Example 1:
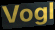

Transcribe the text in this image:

Vogl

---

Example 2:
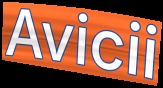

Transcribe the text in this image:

Avicii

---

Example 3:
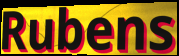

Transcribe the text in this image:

Rubens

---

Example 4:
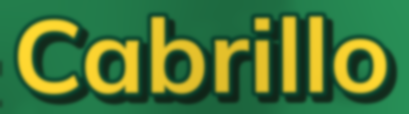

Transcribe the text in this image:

Cabrillo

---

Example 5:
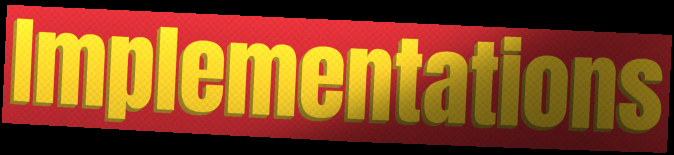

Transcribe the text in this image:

Implementations